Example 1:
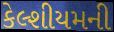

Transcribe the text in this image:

કેલ્શીયમની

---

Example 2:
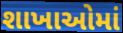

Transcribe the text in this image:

શાખાઓમાં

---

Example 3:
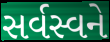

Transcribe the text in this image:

સર્વસ્વને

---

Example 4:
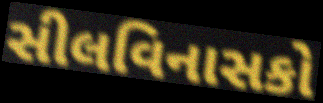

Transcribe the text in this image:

સીલવિનાસકો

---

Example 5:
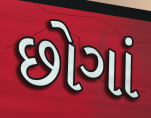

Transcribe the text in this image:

છોગાં